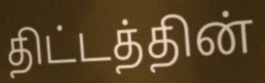
திட்டத்தின்